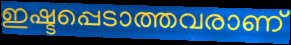
ഇഷ്ടപ്പെടാത്തവരാണ്